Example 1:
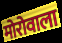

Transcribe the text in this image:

मोरोवाला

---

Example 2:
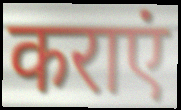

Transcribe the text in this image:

कराएं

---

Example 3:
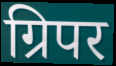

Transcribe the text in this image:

ग्रिपर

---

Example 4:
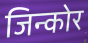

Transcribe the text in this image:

जिन्कोर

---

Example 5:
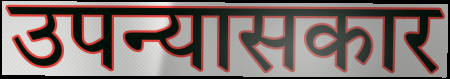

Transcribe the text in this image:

उपन्यासकार